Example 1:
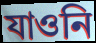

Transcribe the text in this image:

যাওনি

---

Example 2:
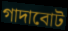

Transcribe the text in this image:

গাদাবোট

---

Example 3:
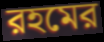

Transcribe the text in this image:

রহমের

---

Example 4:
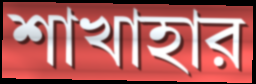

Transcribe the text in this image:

শাখাহার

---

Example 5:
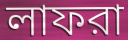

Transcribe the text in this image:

লাফরা